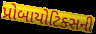
પ્રોબાયોટિક્સની